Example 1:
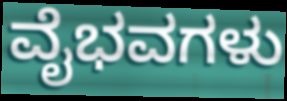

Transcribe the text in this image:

ವೈಭವಗಳು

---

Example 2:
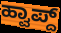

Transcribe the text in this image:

ಹ್ವಾಪ್ದ್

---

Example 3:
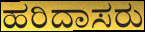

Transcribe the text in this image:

ಹರಿದಾಸರು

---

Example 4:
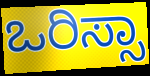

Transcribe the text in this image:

ಒರಿಸ್ಸಾ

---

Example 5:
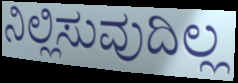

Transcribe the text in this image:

ನಿಲ್ಲಿಸುವುದಿಲ್ಲ